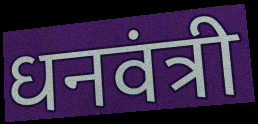
धनवंत्री